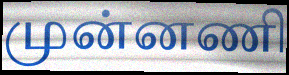
முன்னணி